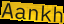
Aankh